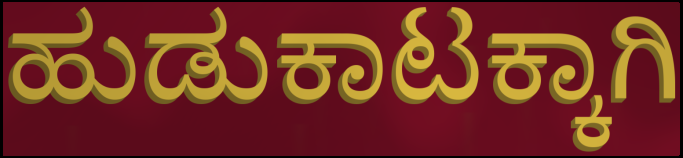
ಹುಡುಕಾಟಕ್ಕಾಗಿ